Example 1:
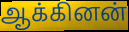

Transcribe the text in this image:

ஆக்கினன்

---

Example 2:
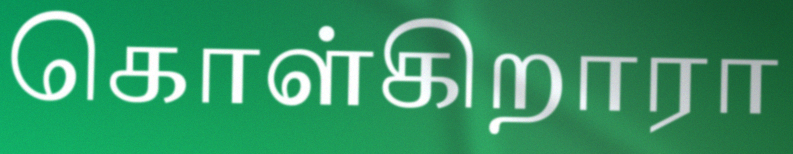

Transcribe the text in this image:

கொள்கிறாரா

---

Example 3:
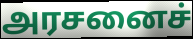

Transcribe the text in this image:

அரசனைச்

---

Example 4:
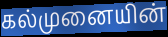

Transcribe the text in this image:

கல்முனையின்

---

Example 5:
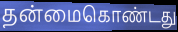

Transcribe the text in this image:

தன்மைகொண்டது